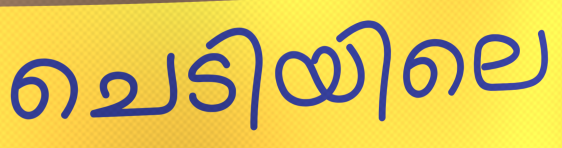
ചെടിയിലെ